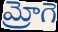
మ్రోగె